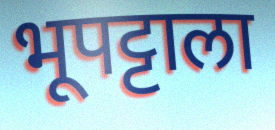
भूपट्टाला